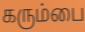
கரும்பை